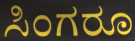
ಸಿಂಗರೂ